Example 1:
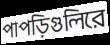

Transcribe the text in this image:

পাপড়িগুলিরে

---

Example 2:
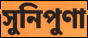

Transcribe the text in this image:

সুনিপুণা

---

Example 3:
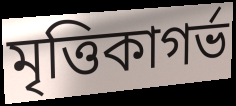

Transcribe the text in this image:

মৃত্তিকাগর্ভ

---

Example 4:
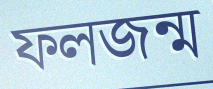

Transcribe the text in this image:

ফলজন্ম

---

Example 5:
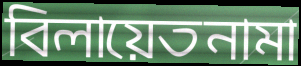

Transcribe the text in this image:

বিলায়েতনামা